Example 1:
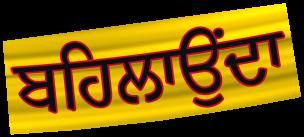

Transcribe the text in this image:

ਬਹਿਲਾਉਂਦਾ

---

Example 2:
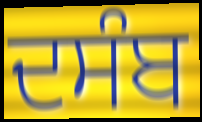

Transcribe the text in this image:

ਦਸੰਬ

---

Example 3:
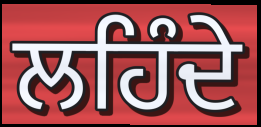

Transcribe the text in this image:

ਲਹਿੰਦੇ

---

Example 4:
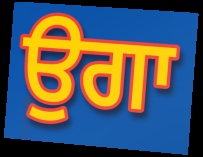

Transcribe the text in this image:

ਉਗਾ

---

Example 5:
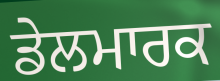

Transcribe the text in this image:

ਡੇਲਮਾਰਕ